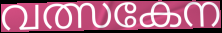
വത്സകേന